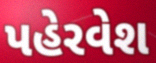
પહેરવેશ